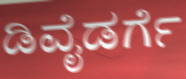
ಡಿವೈಡರ್ಗೆ